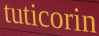
tuticorin